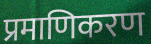
प्रमाणिकरण